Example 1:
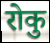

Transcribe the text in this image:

रोकु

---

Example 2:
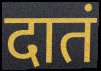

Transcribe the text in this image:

दातं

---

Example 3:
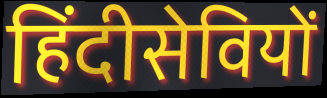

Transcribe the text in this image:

हिंदीसेवियों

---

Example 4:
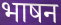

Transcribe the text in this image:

भाषन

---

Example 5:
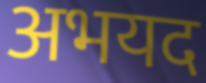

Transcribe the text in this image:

अभयद